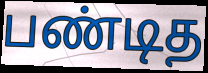
பண்டித